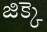
జిక్కె